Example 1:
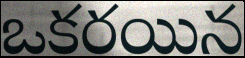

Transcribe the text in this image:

ఒకరయిన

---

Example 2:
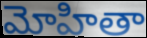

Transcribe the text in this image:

మోహితా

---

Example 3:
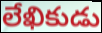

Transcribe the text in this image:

లేఖికుడు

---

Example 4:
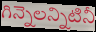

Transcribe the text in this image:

గిన్నెలన్నిటినీ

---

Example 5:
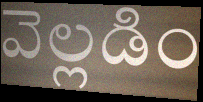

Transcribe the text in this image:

వెల్లడిం